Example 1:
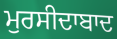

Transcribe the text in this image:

ਮੁਰਸੀਦਾਬਾਦ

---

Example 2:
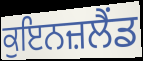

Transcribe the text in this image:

ਕੁਇਨਜ਼ਲੈਂਡ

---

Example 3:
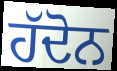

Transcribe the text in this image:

ਹੱਦੋਨ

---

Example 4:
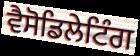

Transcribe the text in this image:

ਵੈਸੋਡਿਲੇਟਿੰਗ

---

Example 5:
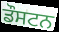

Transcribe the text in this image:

ਡੌਸਟਨ